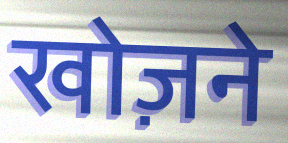
खोज़ने